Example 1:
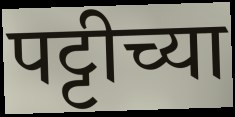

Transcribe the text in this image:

पट्टीच्या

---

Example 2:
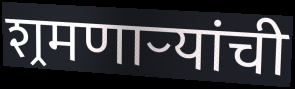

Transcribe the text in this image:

श्रमणाऱ्यांची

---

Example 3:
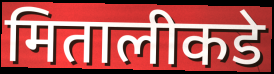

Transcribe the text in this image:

मितालीकडे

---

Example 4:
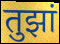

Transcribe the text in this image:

तुझां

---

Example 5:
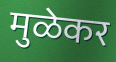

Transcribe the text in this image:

मुळेकर